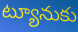
ట్యూనుకు